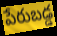
పేరుబడ్డ